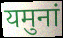
यमुनां